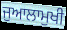
ਜੁਆਲਾਮੁਖੀ